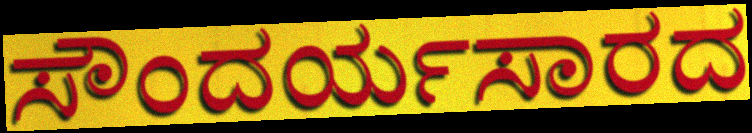
ಸೌಂದರ್ಯಸಾರದ